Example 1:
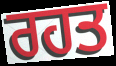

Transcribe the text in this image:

ਰਹਤ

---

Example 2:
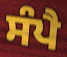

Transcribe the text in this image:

ਸੰਪੈ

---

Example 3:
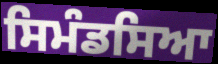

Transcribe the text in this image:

ਸਿਮੰਡਸਿਆ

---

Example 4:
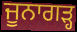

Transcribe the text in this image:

ਜੂਨਾਗੜ੍ਹ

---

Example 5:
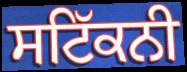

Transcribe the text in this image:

ਸਟਿੱਕਨੀ